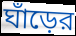
ঘাঁড়ের